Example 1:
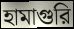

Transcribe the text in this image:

হামাগুরি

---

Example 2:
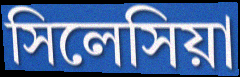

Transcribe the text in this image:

সিলেসিয়া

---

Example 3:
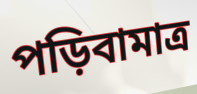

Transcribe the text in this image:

পড়িবামাত্র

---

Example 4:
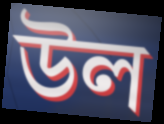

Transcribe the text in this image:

উল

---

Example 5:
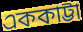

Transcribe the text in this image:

এককাট্টা